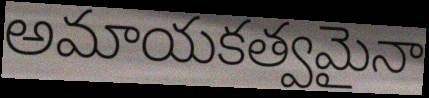
అమాయకత్వమైనా